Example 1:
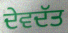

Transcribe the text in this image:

ਦੇਵਦੱਤ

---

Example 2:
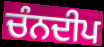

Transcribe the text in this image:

ਚੰਨਦੀਪ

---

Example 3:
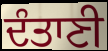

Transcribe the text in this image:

ਦੰਤਾਣੀ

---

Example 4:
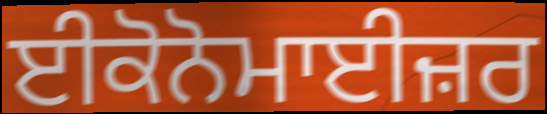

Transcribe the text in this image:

ਈਕੋਨੋਮਾਈਜ਼ਰ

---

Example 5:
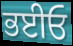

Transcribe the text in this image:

ਭਈਓ